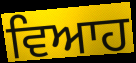
ਵਿਆਹ